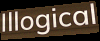
Illogical